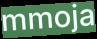
mmoja